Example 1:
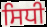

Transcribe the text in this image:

ਸਿਧੀ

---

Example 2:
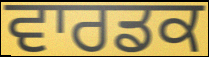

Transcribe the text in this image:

ਵਾਰਡਕ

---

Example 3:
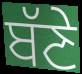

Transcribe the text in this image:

ਬੱਣੇ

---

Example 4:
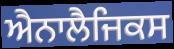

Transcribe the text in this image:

ਐਨਾਲੈਜਿਕਸ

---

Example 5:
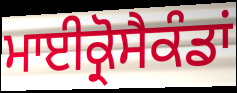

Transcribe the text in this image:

ਮਾਈਕ੍ਰੋਸੈਕੰਡਾਂ